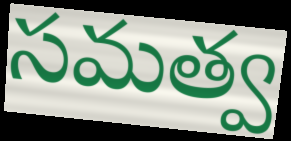
సమత్వ